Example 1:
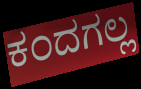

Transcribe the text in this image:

ಕಂದಗಲ್ಲ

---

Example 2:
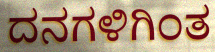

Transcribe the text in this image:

ದನಗಳಿಗಿಂತ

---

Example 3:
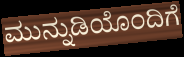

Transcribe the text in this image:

ಮುನ್ನುಡಿಯೊಂದಿಗೆ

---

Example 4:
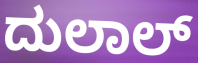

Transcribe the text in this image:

ದುಲಾಲ್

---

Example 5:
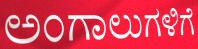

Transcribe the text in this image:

ಅಂಗಾಲುಗಳಿಗೆ